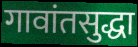
गावांतसुद्धा